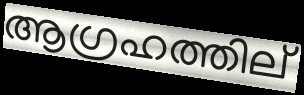
ആഗ്രഹത്തില്